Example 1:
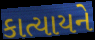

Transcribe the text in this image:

કાત્યાયને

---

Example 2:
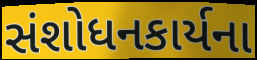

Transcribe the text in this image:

સંશોધનકાર્યના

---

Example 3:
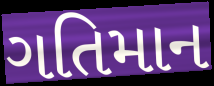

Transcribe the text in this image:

ગતિમાન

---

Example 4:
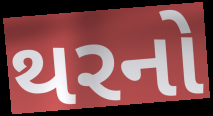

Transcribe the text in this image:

થરનો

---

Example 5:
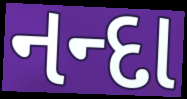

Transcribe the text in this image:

નન્દા